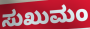
ಸುಖುಮಂ